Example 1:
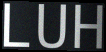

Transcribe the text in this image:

LUH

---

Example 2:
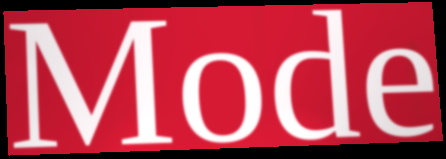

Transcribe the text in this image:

Mode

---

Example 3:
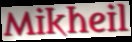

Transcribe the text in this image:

Mikheil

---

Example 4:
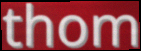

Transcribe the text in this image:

thom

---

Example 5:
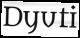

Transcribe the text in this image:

Dyuti